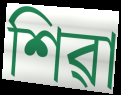
শিৱা